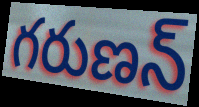
గరుణన్